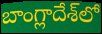
బాంగ్లాదేశ్‌లో